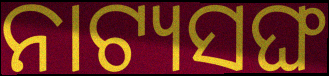
ନାଟ୍ୟସଙ୍ଘ